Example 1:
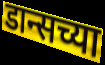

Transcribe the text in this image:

डान्सच्या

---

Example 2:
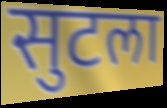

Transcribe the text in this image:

सुटला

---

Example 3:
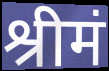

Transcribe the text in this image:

श्रीमं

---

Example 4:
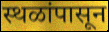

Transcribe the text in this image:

स्थळांपासून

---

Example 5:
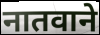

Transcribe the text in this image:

नातवाने